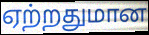
ஏற்றதுமான